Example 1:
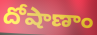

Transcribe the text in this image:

దోషాణాం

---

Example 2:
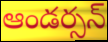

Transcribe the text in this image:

ఆండర్సన్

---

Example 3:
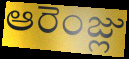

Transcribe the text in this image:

ఆరెంజ్లు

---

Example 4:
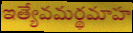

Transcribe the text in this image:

ఇత్యేవమర్థమాహ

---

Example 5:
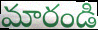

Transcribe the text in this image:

మారండి